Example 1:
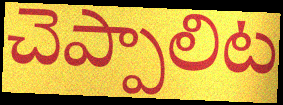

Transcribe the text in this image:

చెప్పాలిట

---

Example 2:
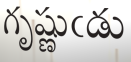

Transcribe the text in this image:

గృష్ణుఁడు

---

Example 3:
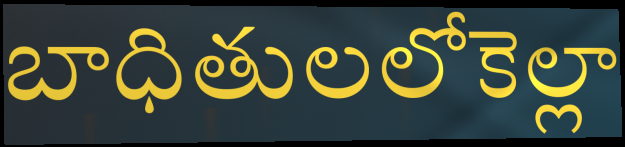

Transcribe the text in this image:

బాధితులలోకెల్లా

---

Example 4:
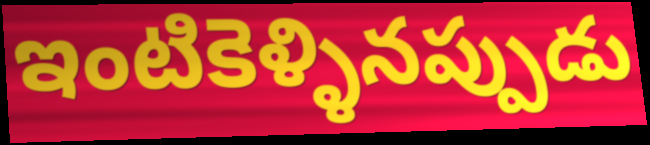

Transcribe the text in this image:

ఇంటికెళ్ళినప్పుడు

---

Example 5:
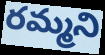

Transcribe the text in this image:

రమ్మని